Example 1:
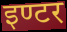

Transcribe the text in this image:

इण्टर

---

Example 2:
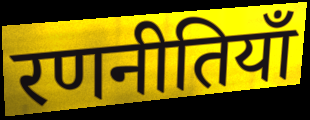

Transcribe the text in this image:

रणनीतियाँ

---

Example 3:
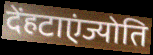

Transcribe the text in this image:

देंहटाएंज्योति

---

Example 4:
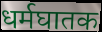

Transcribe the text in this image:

धर्मघातक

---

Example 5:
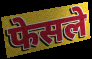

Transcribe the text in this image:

फेसले